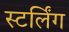
स्टर्लिंग